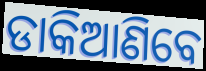
ଡାକିଆଣିବେ